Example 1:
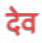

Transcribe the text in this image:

देव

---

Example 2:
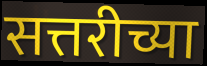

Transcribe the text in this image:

सत्तरीच्या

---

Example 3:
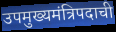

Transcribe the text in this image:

उपमुख्यमंत्रिपदाची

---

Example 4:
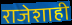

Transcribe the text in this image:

राजेशाही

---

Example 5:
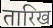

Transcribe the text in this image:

तारिख